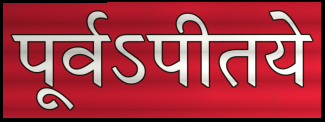
पूर्वऽपीतये